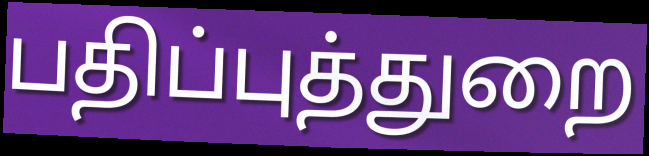
பதிப்புத்துறை